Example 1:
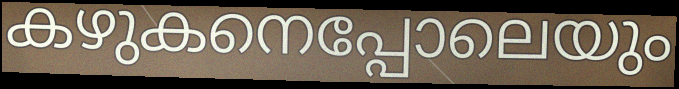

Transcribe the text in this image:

കഴുകനെപ്പോലെയും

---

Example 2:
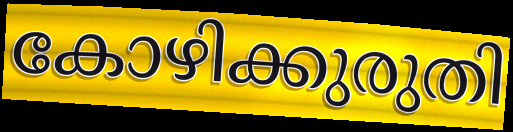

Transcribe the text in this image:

കോഴിക്കുരുതി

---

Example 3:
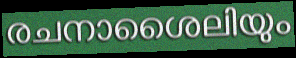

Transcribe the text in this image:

രചനാശൈലിയും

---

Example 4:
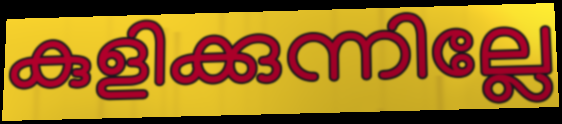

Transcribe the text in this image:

കുളിക്കുന്നില്ലേ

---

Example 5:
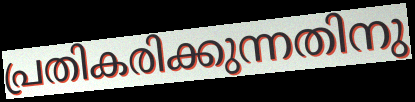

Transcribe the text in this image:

പ്രതികരിക്കുന്നതിനു